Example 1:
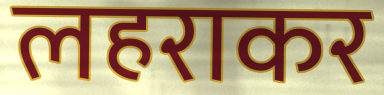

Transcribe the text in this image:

लहराकर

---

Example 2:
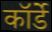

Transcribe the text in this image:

कॉर्डे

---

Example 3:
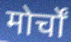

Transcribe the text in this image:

मोर्चों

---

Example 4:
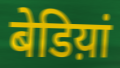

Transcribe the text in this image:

बेडिय़ां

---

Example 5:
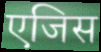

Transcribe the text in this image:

एजिस